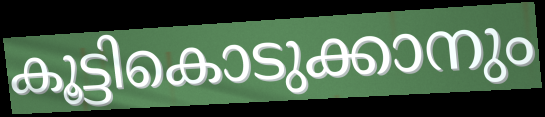
കൂട്ടികൊടുക്കാനും